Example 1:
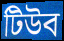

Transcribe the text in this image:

টিউব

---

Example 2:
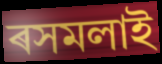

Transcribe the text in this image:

ৰসমলাই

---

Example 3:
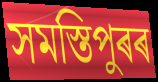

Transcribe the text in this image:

সমস্তিপুৰৰ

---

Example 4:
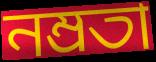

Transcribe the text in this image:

নম্ৰতা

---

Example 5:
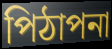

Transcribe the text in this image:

পিঠাপনা